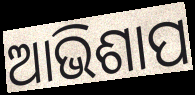
ଆଭିଶାପ